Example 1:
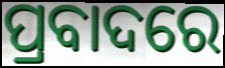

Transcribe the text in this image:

ପ୍ରବାଦରେ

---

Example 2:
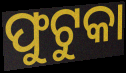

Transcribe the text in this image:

ଫୁଟୁକା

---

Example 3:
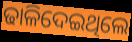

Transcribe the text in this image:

ଢାଳିଦେଇଥିଲେ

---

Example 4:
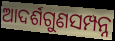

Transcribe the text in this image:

ଆଦର୍ଶଗୁଣସମ୍ପନ୍ନ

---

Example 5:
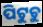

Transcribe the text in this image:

ପିଟୁଚୁ